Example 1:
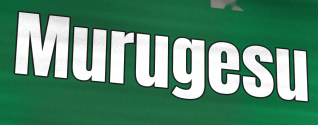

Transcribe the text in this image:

Murugesu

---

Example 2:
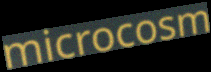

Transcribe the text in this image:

microcosm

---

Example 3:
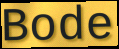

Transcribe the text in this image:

Bode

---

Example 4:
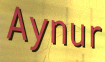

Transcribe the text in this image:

Aynur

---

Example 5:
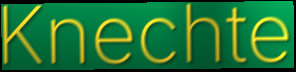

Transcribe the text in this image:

Knechte